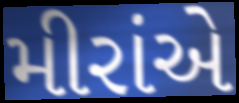
મીરાંએ